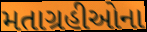
મતાગ્રહીઓના